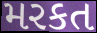
મરકત